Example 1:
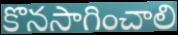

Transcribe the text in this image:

కొనసాగించాలి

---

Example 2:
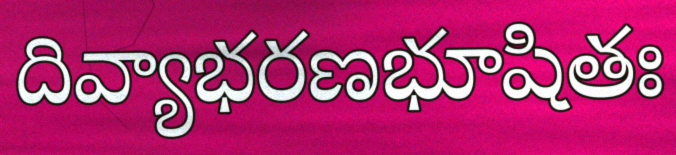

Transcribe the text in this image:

దివ్యాభరణభూషితః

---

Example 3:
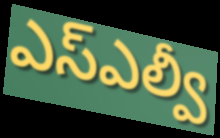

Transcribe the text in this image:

ఎస్ఎల్వీ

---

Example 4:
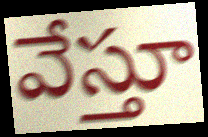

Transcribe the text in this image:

వేస్తూ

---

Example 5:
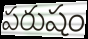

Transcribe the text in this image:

పరుషం